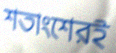
শতাংশেরই